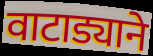
वाटाड्याने